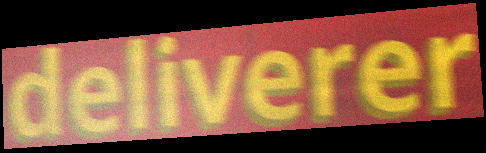
deliverer